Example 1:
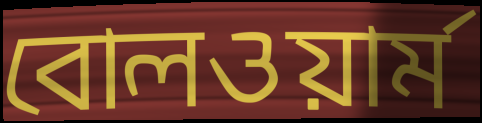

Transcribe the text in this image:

বোলওয়ার্ম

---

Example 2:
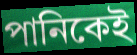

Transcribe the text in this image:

পানিকেই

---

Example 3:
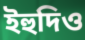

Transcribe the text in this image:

ইহুদিও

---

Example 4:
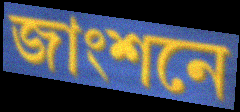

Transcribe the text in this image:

জাংশনে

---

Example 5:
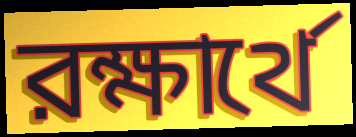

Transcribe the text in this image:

রক্ষার্থে